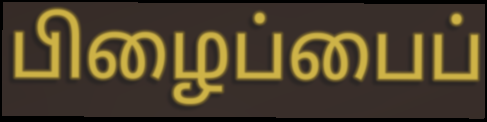
பிழைப்பைப்